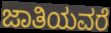
ಜಾತಿಯವರೆ